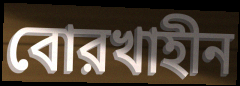
বোরখাহীন